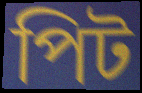
পিট